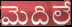
మెదిలే